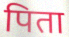
पिता